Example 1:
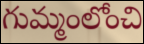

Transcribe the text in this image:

గుమ్మంలోంచి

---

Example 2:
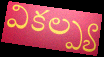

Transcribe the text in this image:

వికల్ప్య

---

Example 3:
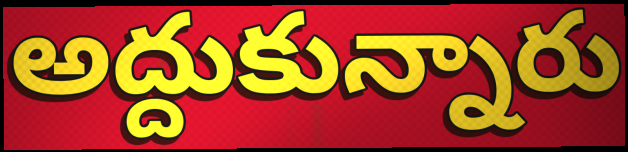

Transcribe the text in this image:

అద్దుకున్నారు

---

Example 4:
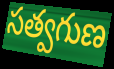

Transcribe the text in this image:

సత్వగుణ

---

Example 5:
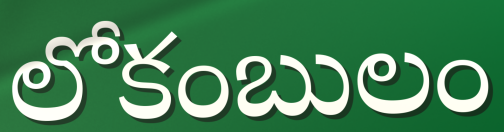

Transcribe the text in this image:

లోకంబులం